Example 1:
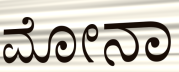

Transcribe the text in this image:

ಮೋನಾ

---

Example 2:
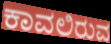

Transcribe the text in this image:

ಕಾವಲಿರುವ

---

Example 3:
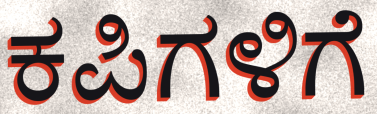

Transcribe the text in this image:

ಕಪಿಗಳಿಗೆ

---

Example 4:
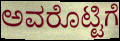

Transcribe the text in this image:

ಅವರೊಟ್ಟಿಗೆ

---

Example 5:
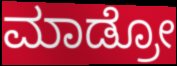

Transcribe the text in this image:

ಮಾಡ್ರೋ